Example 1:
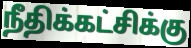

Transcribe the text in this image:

நீதிக்கட்சிக்கு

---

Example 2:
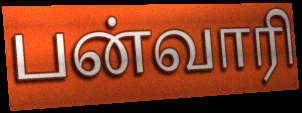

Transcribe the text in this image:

பன்வாரி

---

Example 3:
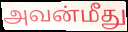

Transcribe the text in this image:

அவன்மீது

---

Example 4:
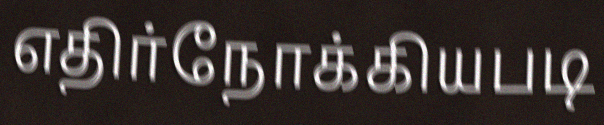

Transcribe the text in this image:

எதிர்நோக்கியபடி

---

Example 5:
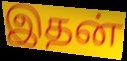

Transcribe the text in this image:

இதன்